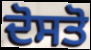
ਦੋਸਤੋ